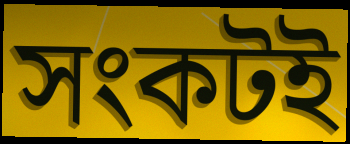
সংকটই